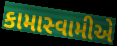
કામાસ્વામીએ